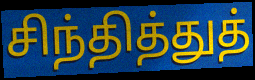
சிந்தித்துத்